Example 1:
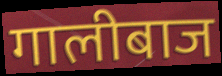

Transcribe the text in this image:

गालीबाज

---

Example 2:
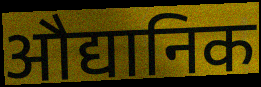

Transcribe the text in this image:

औद्यानिक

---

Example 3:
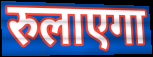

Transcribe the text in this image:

रुलाएगा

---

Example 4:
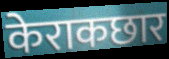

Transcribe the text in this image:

केराकछार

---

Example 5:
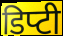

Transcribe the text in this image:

डिप्‍टी